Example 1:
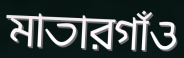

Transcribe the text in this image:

মাতারগাঁও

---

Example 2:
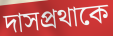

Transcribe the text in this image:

দাসপ্রথাকে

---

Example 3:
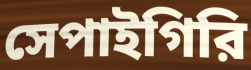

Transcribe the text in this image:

সেপাইগিরি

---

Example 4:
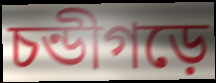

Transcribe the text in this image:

চন্ডীগড়ে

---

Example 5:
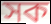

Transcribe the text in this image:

সক